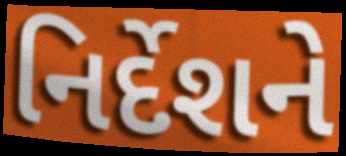
નિર્દેશને